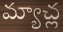
మ్యాచ్ల